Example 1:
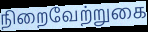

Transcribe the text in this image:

நிறைவேற்றுகை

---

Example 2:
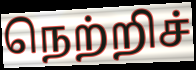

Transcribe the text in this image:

நெற்றிச்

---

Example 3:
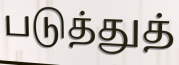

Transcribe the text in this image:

படுத்துத்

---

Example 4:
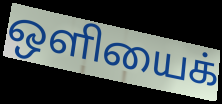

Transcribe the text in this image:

ஒளியைக்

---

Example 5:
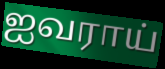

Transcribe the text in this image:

ஐவராய்